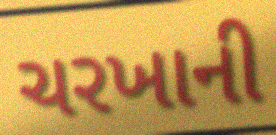
ચરખાની